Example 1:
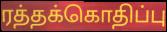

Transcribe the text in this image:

ரத்தக்கொதிப்பு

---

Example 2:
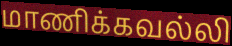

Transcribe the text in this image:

மாணிக்கவல்லி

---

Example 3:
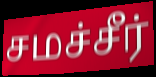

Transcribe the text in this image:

சமச்சீர்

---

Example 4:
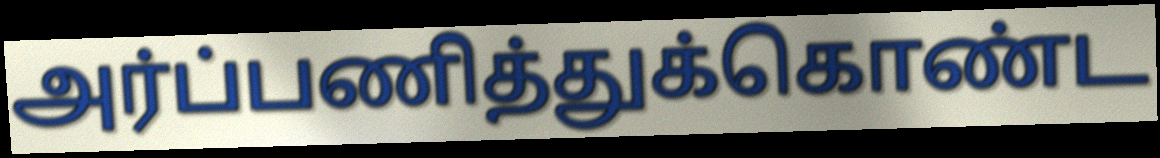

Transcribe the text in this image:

அர்ப்பணித்துக்கொண்ட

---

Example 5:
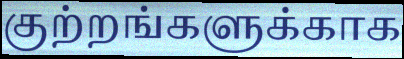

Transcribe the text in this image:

குற்றங்களுக்காக